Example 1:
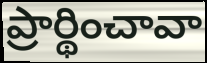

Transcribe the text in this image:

ప్రార్థించావా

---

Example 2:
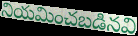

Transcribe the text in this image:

నియమించబడినవి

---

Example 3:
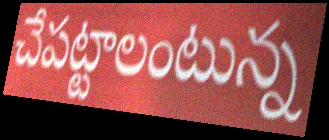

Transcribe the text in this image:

చేపట్టాలంటున్న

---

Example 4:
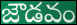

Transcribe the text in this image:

జౌడవం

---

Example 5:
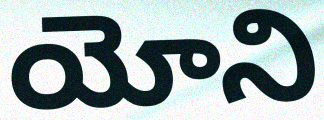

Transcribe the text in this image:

యోని